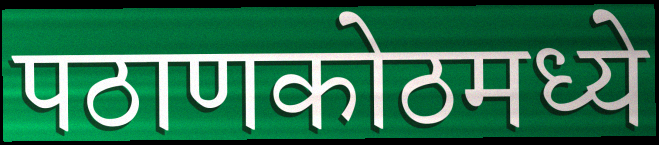
पठाणकोठमध्ये